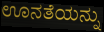
ಊನತೆಯನ್ನು